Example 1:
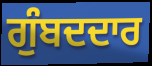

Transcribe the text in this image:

ਗੁੰਬਦਦਾਰ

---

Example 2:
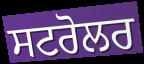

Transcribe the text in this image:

ਸਟਰੋਲਰ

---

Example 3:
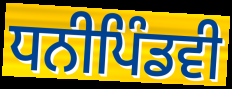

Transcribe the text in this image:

ਧਨੀਪਿੰਡਵੀ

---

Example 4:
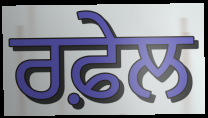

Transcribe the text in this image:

ਰਫ਼ੇਲ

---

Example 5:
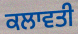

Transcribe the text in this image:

ਕਲਾਵਤੀ